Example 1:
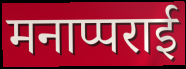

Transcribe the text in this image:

मनाप्पराई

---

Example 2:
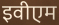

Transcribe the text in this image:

इवीएम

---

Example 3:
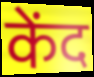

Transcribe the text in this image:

केंद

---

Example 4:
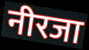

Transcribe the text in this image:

नीरजा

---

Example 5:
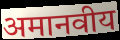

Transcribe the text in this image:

अमानवीय